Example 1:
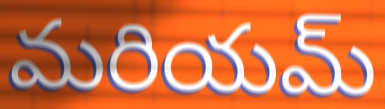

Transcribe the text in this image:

మరియమ్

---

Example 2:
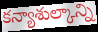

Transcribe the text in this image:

కన్యాశుల్కాన్ని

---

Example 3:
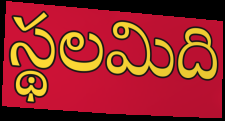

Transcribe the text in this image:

స్థలమిది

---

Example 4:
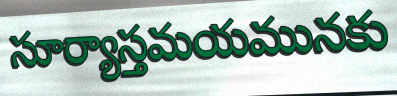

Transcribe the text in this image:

సూర్యాస్తమయమునకు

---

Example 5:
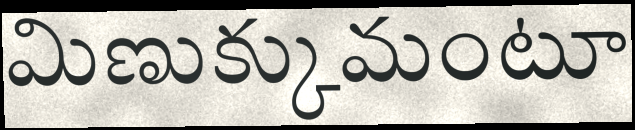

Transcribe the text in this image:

మిణుక్కుమంటూ